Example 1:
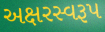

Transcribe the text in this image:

અક્ષરસ્વરૂપ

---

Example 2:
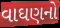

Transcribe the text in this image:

વાઘણનો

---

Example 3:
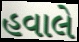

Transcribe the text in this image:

હવાલે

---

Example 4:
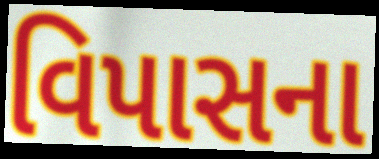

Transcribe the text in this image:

વિપાસના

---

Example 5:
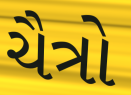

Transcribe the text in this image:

ચૈત્રો